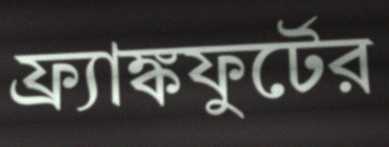
ফ্র্যাঙ্কফুর্টের